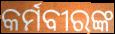
କର୍ମବୀରଙ୍କ